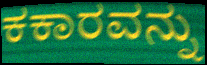
ಕಕಾರವನ್ನು